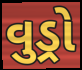
વુડ્રો